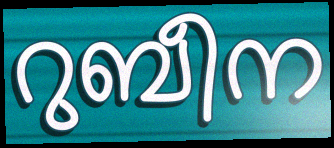
റുബീന